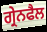
ਗ੍ਰੇਨਫੈਲ